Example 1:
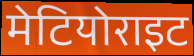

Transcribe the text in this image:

मेटियोराइट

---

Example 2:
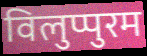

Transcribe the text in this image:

विलुप्पुरम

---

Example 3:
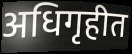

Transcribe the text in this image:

अधिगृहीत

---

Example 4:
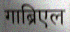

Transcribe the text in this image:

गाब्रिएल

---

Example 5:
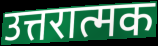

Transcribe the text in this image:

उत्तरात्मक